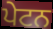
ਪੇਟਨ